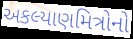
અકલ્યાણમિત્રોનો